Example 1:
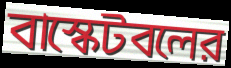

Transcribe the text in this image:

বাস্কেটবলের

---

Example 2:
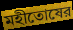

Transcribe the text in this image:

মহীতোষের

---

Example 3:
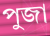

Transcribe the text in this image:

পুজা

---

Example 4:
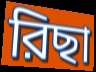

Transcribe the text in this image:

রিছা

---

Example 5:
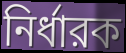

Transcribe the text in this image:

নির্ধারক